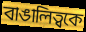
বাঙালিত্বকে